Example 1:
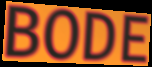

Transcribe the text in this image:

BODE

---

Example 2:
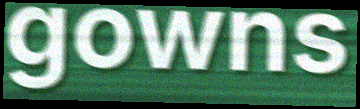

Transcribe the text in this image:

gowns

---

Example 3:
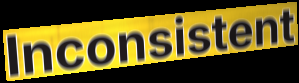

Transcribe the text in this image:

Inconsistent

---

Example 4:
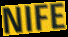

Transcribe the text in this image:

NIFE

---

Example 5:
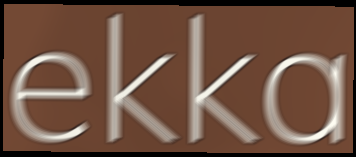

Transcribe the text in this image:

ekka